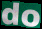
do